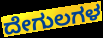
ದೇಗುಲಗಳ